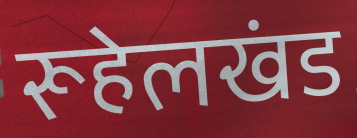
रूहेलखंड